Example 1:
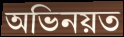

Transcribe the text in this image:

অভিনয়ত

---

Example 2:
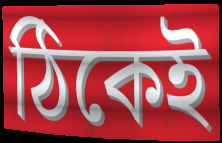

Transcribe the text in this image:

ঠিকেই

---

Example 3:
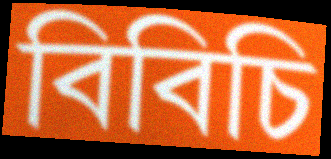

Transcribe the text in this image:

বিবিচি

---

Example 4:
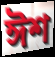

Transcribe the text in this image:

ঈশ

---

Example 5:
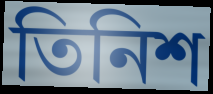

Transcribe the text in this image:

তিনিশ